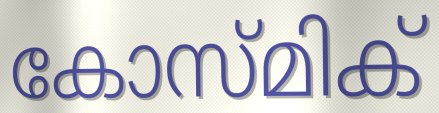
കോസ്മിക്